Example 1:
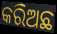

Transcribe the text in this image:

କରିଅଛ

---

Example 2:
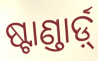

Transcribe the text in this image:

ଷ୍ଟାଣ୍ଡାର୍ଡ଼୍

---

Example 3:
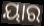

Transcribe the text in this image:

ୟାର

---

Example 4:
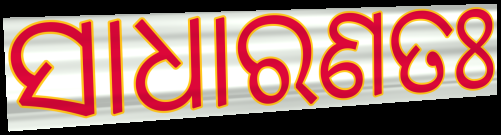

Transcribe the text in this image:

ସାଧାରଣତଃ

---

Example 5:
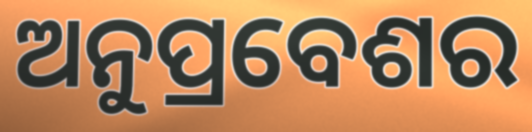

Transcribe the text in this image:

ଅନୁପ୍ରବେଶର